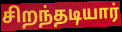
சிறந்தடியார்